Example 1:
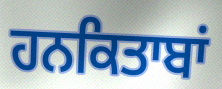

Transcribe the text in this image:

ਹਨਕਿਤਾਬਾਂ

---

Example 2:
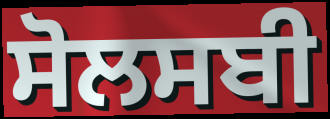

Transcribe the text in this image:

ਸੋਲਸਬੀ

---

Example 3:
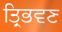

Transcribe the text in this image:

ਤ੍ਰਿਭਵਣ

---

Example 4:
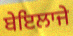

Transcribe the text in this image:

ਬੇਇਲਾਜੇ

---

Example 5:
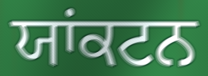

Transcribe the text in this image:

ਯਾਂਕਟਨ